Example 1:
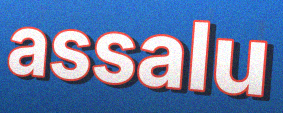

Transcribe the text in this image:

assalu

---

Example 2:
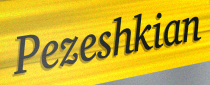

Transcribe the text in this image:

Pezeshkian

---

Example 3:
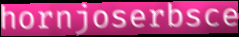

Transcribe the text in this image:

hornjoserbsce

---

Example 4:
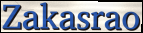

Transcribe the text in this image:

Zakasrao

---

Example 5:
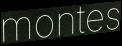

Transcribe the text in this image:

montes